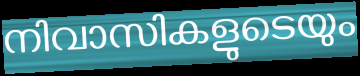
നിവാസികളുടെയും